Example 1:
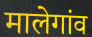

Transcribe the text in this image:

मालेगांव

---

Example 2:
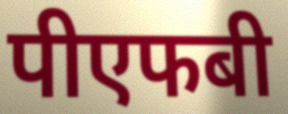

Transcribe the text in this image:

पीएफबी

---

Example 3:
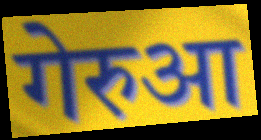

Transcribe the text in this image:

गेरुआ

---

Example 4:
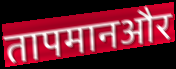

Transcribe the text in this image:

तापमानऔर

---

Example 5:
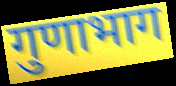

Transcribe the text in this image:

गुणाभाग